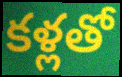
కళ్లతో